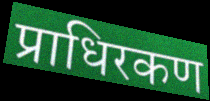
प्राधिरकण